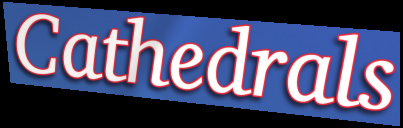
Cathedrals